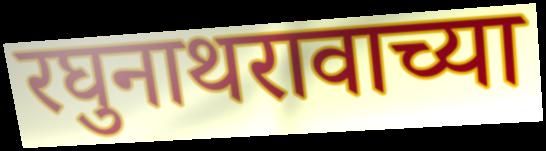
रघुनाथरावाच्या